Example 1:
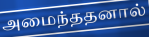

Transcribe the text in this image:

அமைந்ததனால்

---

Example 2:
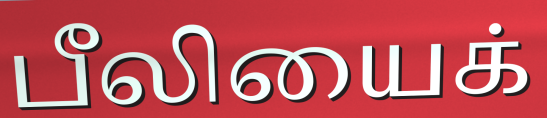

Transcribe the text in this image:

பீலியைக்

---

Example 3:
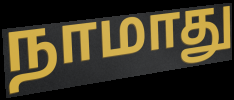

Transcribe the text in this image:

நாமாது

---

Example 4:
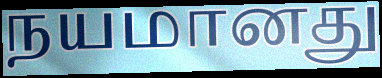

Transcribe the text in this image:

நயமானது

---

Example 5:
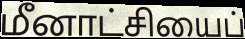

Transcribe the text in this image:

மீனாட்சியைப்